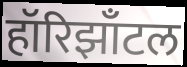
हॉरिझाँटल